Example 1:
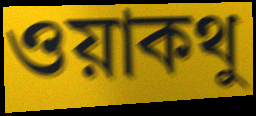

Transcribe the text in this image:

ওয়াকথু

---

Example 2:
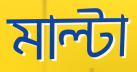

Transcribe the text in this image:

মাল্টা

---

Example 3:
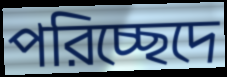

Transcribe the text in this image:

পরিচ্ছেদে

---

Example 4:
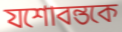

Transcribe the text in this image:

যশোবন্তকে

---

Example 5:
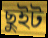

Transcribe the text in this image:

ছুইট